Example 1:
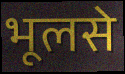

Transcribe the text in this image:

भूलसे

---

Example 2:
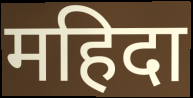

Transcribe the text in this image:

महिदा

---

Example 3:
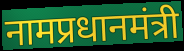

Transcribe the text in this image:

नामप्रधानमंत्री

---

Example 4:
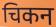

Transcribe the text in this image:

चिकन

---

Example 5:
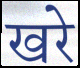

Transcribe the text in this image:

खरे